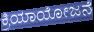
ಕ್ರಿಯಾಯೋಜನೆ